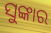
ସୁଙ୍କାର